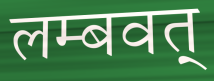
लम्बवत्